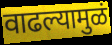
वाढल्यामुळं